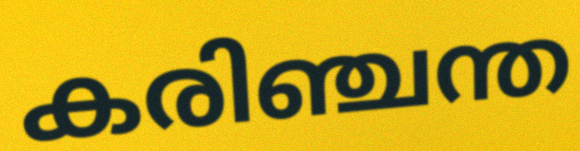
കരിഞ്ചന്ത